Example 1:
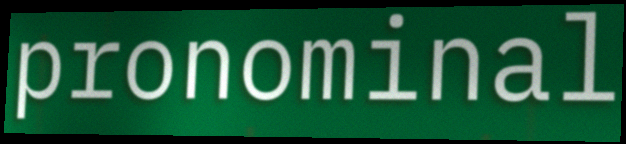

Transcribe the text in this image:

pronominal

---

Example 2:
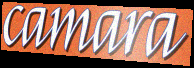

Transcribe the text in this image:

camara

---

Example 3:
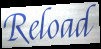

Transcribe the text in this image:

Reload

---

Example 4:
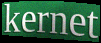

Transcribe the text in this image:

kernet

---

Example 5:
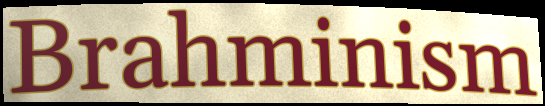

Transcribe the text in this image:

Brahminism